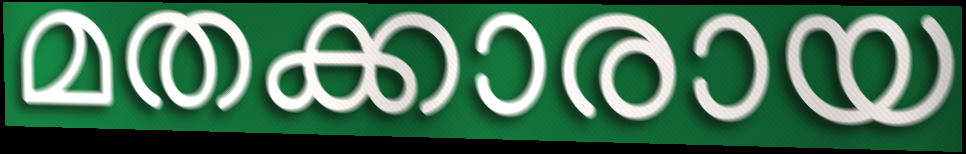
മതക്കാരായ